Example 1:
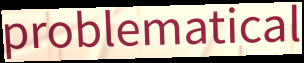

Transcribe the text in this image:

problematical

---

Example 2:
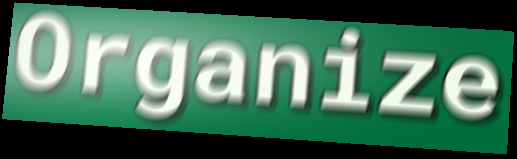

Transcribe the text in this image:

Organize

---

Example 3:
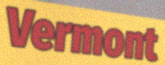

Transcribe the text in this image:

Vermont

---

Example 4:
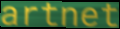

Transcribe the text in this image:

artnet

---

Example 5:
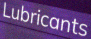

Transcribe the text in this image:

Lubricants